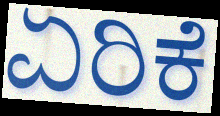
ಏರಿಕೆ